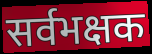
सर्वभक्षक